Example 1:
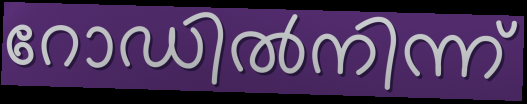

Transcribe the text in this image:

റോഡിൽനിന്ന്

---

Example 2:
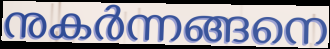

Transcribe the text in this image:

നുകർന്നങ്ങനെ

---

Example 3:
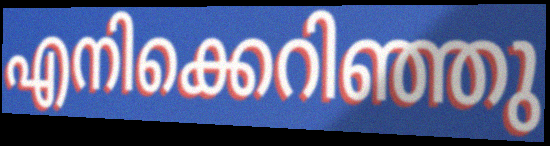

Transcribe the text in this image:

എനിക്കെറിഞ്ഞു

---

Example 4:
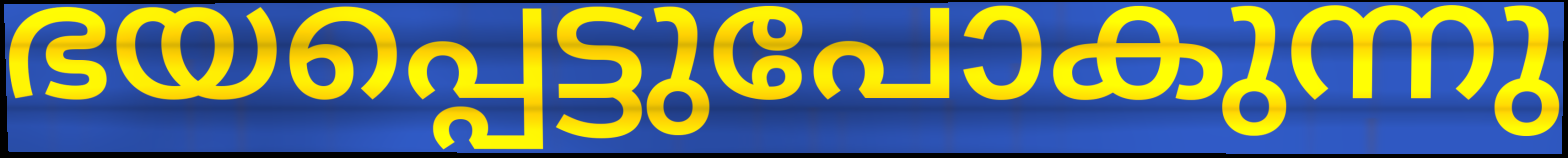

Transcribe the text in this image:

ഭയപ്പെട്ടുപോകുന്നു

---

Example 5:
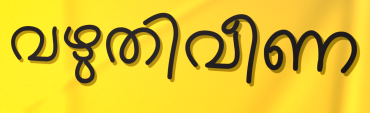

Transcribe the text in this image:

വഴുതിവീണ